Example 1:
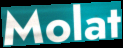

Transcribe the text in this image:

Molat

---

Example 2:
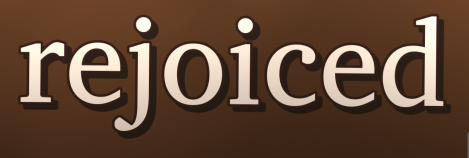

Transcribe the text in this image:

rejoiced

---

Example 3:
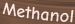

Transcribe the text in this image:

Methanol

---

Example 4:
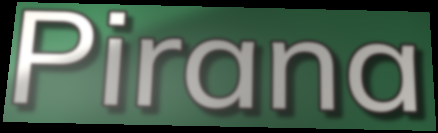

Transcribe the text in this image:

Pirana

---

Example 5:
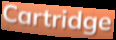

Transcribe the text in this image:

Cartridge